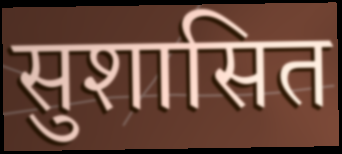
सुशासित